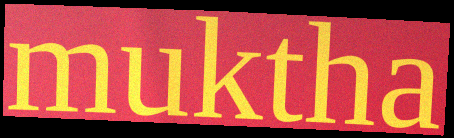
muktha